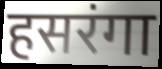
हसरंगा